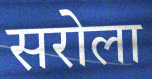
सरोला